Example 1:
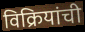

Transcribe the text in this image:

विक्रियांची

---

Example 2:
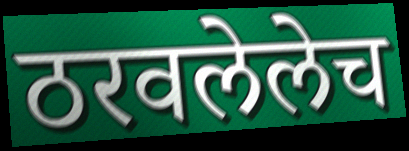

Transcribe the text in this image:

ठरवलेलेच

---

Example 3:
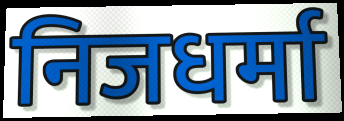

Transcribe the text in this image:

निजधर्मा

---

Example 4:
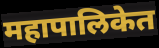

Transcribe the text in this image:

महापालिकेत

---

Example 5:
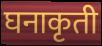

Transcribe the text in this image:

घनाकृती